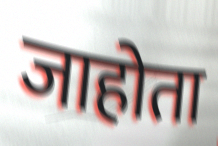
जाहोता